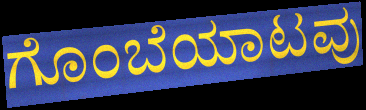
ಗೊಂಬೆಯಾಟವು